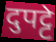
दुपट्टे